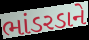
ભાંડરડાને